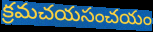
క్రమచయసంచయం